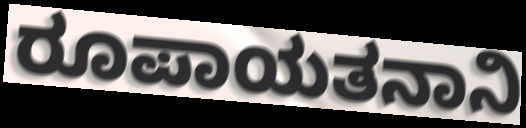
ರೂಪಾಯತನಾನಿ